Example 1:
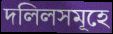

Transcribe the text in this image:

দলিলসমূহে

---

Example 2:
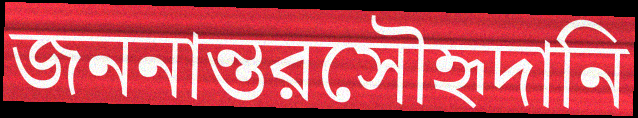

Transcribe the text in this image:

জননান্তরসৌহৃদানি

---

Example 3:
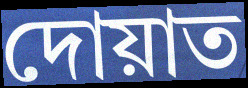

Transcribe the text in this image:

দোয়াত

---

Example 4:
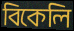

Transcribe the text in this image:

বিকেলি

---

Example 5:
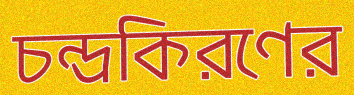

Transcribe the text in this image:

চন্দ্রকিরণের